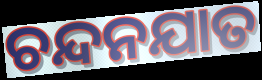
ଚନ୍ଦନଯାତ